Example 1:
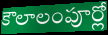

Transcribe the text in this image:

కౌలాలంపూర్లో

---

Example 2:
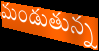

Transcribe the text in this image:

మండుతున్న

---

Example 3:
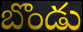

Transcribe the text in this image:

బొండు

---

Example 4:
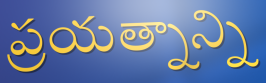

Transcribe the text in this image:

ప్రయత్నాన్ని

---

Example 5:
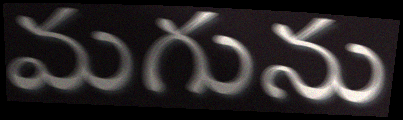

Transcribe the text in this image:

మగును